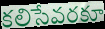
కలిసేవరకూ